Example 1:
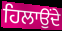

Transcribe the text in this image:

ਹਿਲਾਉਂਦੇ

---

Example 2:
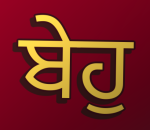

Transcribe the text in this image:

ਬੇਹੁ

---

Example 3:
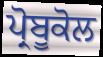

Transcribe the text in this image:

ਪ੍ਰੋਬੂਕੋਲ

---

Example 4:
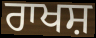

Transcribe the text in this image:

ਰਾਖਸ਼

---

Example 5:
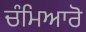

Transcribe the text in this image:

ਚੰਮਿਆਰੋ